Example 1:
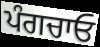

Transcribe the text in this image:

ਪੰਗਚਾਓ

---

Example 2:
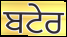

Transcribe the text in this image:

ਬਟੇਰ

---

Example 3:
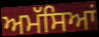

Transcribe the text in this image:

ਅਮੱਸਿਆਂ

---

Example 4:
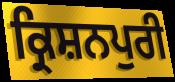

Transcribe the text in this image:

ਕ੍ਰਿਸ਼ਨਪੁਰੀ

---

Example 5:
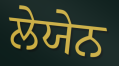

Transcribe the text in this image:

ਲੇਯੇਨ